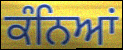
ਕੰਨਿਆਂ